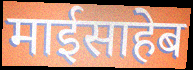
माईसाहेब